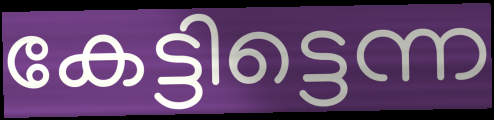
കേട്ടിട്ടെന്ന